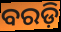
ବରଡ଼ି